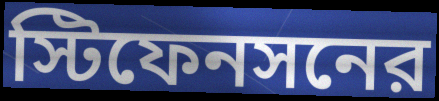
স্টিফেনসনের